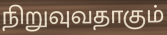
நிறுவுவதாகும்